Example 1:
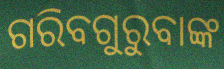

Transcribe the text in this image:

ଗରିବଗୁରୁବାଙ୍କ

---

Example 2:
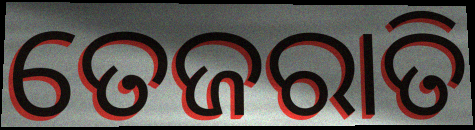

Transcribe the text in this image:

ତେଜରାତି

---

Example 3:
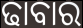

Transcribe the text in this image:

ଢାବାର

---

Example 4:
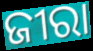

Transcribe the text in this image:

ଜୀରା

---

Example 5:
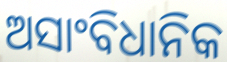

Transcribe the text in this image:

ଅସାଂବିଧାନିକ